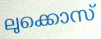
ലുക്കൊസ്